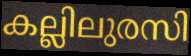
കല്ലിലുരസി